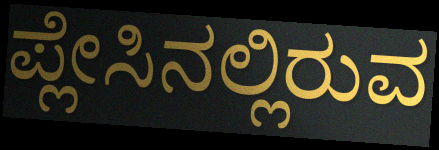
ಪ್ಲೇಸಿನಲ್ಲಿರುವ